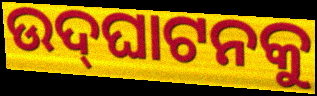
ଉଦ୍‌ଘାଟନକୁ